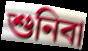
শুনিবা